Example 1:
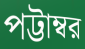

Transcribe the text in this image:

পট্টাম্বর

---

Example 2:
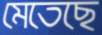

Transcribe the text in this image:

মেতেছে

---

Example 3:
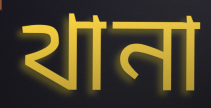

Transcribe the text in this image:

থানা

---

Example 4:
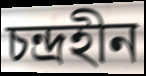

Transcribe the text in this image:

চন্দ্রহীন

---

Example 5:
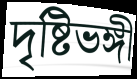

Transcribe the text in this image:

দৃষ্টিভঙ্গী